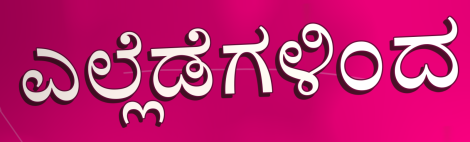
ಎಲ್ಲೆಡೆಗಳಿಂದ